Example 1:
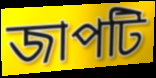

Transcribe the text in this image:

জাপটি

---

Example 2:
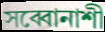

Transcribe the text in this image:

সব্বোনাশী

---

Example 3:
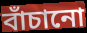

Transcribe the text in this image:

বাঁচানো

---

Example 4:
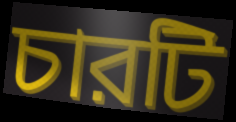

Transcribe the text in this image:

চারটি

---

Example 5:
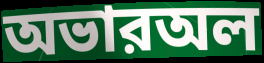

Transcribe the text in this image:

অভারঅল